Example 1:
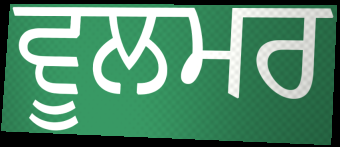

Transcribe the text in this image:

ਵੂਲਮਰ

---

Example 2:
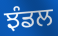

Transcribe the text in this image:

ਝੰਡਲ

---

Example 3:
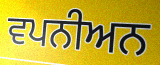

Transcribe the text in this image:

ਵਪਨੀਅਨ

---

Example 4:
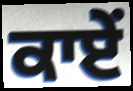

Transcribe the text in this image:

ਕਾਏਂ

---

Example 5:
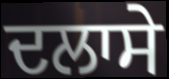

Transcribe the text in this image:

ਦਲਾਸੇ